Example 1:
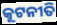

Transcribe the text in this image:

କୂଟନୀତି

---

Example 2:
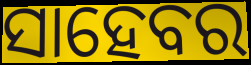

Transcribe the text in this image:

ସାହେବର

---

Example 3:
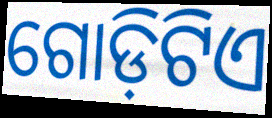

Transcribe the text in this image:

ଗୋଡ଼ିଟିଏ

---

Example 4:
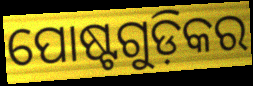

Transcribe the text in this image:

ପୋଷ୍ଟଗୁଡ଼ିକର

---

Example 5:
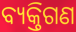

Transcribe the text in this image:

ବ୍ଯକ୍ତିଗଣ